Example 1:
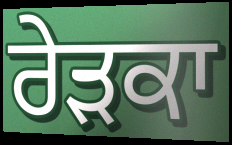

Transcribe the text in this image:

ਰੇੜਕਾ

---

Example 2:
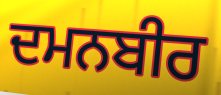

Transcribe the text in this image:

ਦਮਨਬੀਰ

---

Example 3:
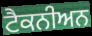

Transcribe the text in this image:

ਟੈਕਨੀਅਨ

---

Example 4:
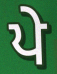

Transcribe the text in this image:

ਪੇ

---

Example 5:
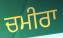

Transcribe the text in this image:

ਚਮੀਰਾ